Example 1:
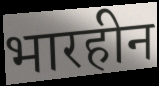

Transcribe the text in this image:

भारहीन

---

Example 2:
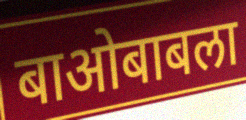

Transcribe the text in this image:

बाओबाबला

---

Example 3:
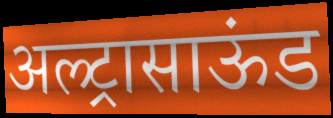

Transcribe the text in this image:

अल्ट्रासाऊंड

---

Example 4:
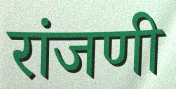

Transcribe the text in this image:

रांजणी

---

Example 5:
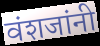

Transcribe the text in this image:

वंशजांनी